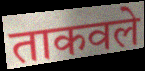
ताकवले